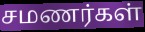
சமணர்கள்